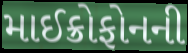
માઈક્રોફોનની